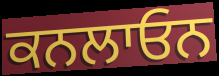
ਕਨਲਾਓਨ